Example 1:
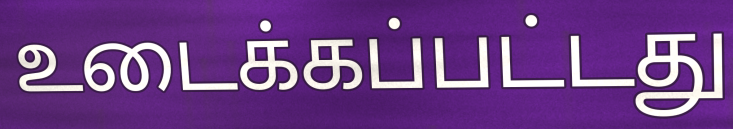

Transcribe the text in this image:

உடைக்கப்பட்டது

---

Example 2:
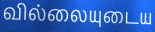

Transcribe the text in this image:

வில்லையுடைய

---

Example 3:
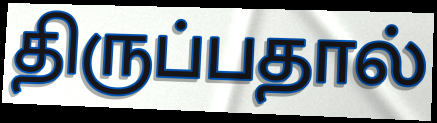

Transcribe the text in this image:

திருப்பதால்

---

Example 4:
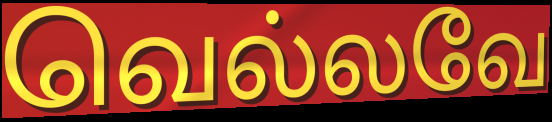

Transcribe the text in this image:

வெல்லவே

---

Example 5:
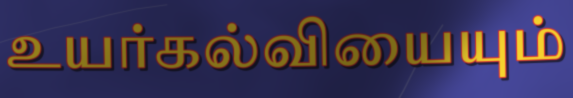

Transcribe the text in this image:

உயர்கல்வியையும்